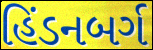
હિંડનબર્ગ